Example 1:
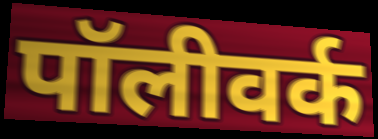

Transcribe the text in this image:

पॉलीवर्क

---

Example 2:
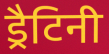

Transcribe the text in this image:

ड्रैटिनी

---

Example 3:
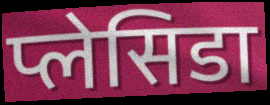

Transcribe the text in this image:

प्लेसिडा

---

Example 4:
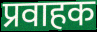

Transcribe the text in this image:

प्रवाहक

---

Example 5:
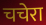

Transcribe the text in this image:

चचेरा